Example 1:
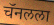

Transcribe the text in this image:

चॅनलला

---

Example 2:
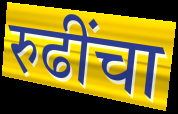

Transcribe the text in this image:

रुढींचा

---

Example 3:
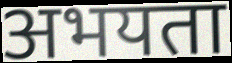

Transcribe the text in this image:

अभयता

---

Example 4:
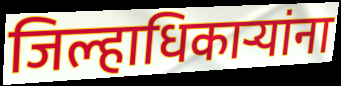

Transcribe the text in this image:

जिल्हाधिकाऱ्यांना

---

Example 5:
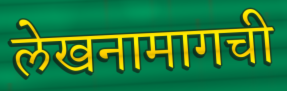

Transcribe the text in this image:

लेखनामागची